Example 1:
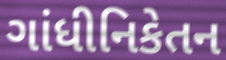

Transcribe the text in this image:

ગાંધીનિકેતન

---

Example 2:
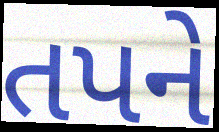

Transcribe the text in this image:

તપને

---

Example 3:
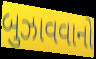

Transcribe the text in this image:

બુઝાવવાનો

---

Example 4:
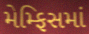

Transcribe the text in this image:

મેમ્ફિસમાં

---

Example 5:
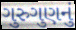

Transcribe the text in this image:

ગુરુગુણનું